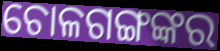
ଚୋଳଗଙ୍ଗଙ୍କର